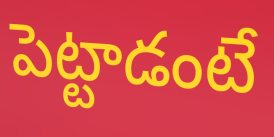
పెట్టాడంటే